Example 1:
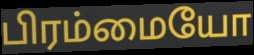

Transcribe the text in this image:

பிரம்மையோ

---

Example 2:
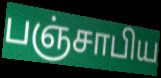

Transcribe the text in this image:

பஞ்சாபிய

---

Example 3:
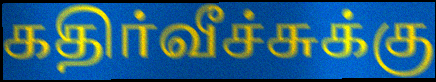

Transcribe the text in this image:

கதிர்வீச்சுக்கு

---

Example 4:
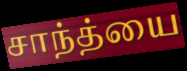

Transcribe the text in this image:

சாந்த்யை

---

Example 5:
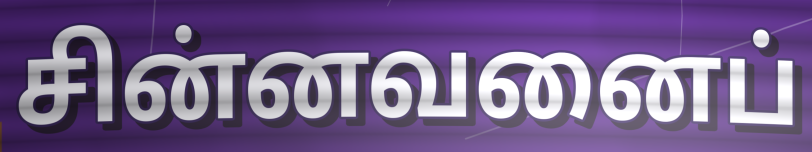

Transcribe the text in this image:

சின்னவனைப்